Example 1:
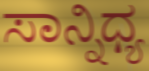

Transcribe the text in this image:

ಸಾನ್ನಿಧ್ಯ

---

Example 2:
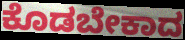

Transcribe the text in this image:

ಕೊಡಬೇಕಾದ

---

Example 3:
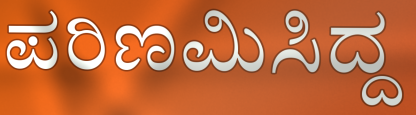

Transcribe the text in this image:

ಪರಿಣಮಿಸಿದ್ದ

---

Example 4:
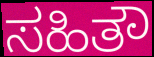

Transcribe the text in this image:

ಸಹಿತೌ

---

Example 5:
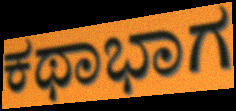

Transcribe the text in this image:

ಕಥಾಭಾಗ